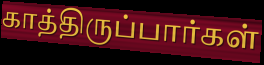
காத்திருப்பார்கள்